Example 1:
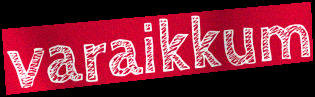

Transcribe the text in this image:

varaikkum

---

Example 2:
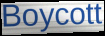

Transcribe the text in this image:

Boycott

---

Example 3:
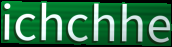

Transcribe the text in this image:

ichchhe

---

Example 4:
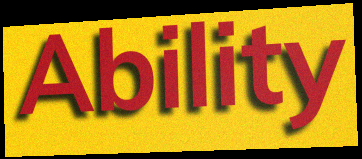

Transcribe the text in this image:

Ability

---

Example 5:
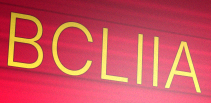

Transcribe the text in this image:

BCLIIA